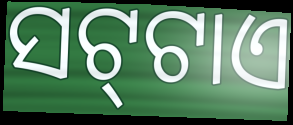
ସଟ୍‍ଟାଏ